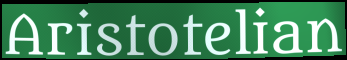
Aristotelian